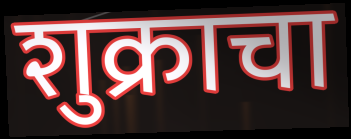
शुक्राचा